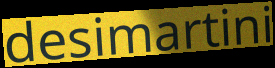
desimartini